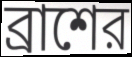
ব্রাশের